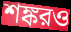
শঙ্করও